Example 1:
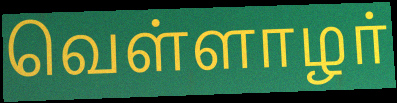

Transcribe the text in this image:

வெள்ளாழர்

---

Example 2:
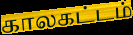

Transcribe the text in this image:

காலகட்டம்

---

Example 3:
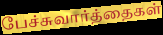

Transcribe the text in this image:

பேச்சுவார்த்தைகள்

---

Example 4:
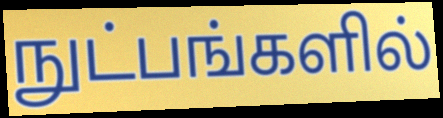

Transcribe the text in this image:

நுட்பங்களில்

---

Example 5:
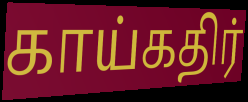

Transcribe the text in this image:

காய்கதிர்